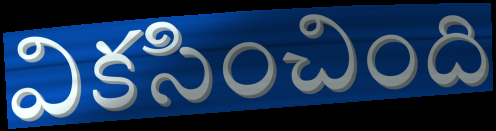
వికసించింది